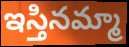
ఇస్తినమ్మా